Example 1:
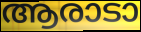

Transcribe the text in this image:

ആരാടാ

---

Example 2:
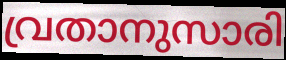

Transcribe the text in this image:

വ്രതാനുസാരി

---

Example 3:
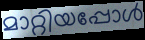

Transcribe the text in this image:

മാറ്റിയപ്പോൾ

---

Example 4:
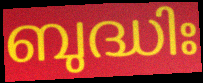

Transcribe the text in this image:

ബുദ്ധിഃ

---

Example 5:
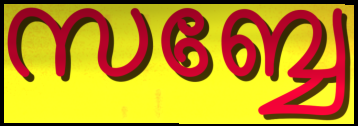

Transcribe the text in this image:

സബ്ബേ